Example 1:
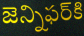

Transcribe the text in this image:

జెన్నిఫర్‌కి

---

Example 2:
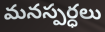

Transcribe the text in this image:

మనస్పర్ధలు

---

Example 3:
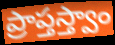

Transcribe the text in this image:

ప్రాప్తస్త్వాం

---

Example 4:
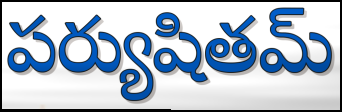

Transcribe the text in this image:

పర్యుషితమ్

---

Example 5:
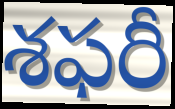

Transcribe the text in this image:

శఫరీ